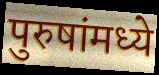
पुरुषांमध्ये